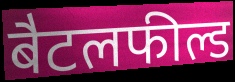
बैटलफील्ड